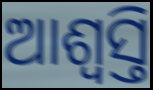
ଆଶ୍ଵସ୍ତି